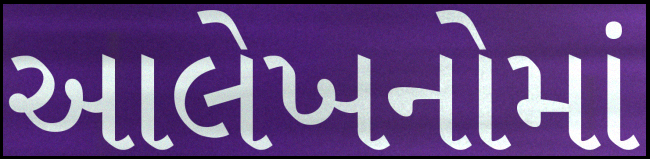
આલેખનોમાં